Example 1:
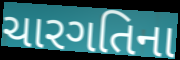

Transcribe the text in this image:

ચારગતિના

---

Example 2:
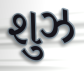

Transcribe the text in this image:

શુઝ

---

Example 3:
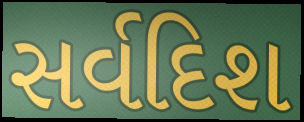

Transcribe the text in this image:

સર્વદિશ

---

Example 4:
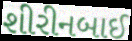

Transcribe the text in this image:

શીરીનબાઈ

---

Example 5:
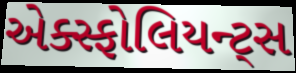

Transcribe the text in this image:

એક્સ્ફોલિયન્ટ્સ